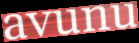
avunu